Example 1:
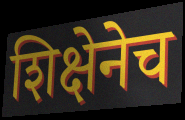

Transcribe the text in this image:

शिक्षेनेच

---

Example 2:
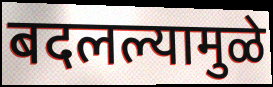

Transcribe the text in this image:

बदलल्यामुळे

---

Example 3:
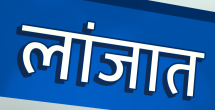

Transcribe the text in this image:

लांजात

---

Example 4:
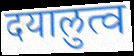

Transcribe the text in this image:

दयालुत्व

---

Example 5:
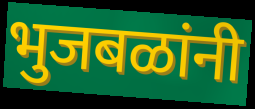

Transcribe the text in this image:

भुजबळांनी